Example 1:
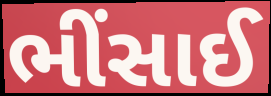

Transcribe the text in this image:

ભીંસાઈ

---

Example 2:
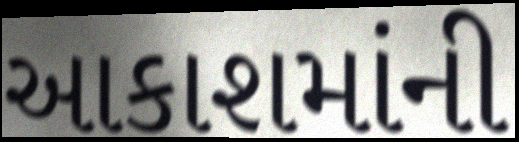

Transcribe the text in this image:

આકાશમાંની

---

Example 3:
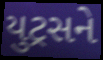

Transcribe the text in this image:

યુટ્રસને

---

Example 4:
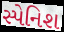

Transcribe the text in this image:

સ્પેનિશ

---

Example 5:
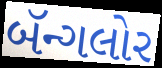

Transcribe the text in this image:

બૅન્ગલોર